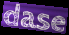
dase